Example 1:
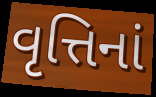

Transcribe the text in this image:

વૃત્તિનાં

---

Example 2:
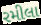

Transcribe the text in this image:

રમીલા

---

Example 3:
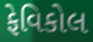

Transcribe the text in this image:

ફેવિકોલ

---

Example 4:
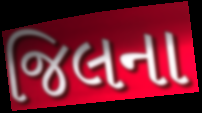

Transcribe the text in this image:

જિલના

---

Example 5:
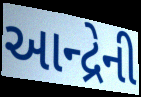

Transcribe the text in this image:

આન્દ્રેની